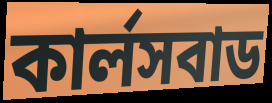
কার্লসবাড